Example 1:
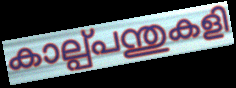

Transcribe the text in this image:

കാല്പ്പന്തുകളി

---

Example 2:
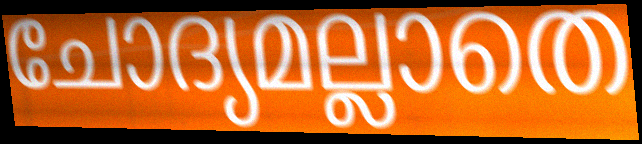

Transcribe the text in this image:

ചോദ്യമല്ലാതെ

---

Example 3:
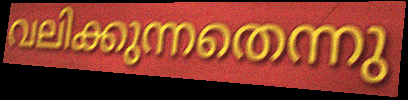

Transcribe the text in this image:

വലിക്കുന്നതെന്നു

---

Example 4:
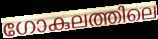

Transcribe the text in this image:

ഗോകുലത്തിലെ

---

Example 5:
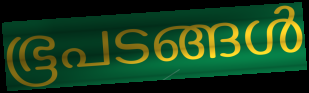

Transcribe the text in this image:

ഭൂപടങ്ങൾ